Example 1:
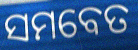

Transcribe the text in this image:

ସମବେତ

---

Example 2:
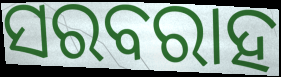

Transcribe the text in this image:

ସରବରାହ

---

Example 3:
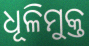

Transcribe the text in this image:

ଧୂଳିମୁକ୍ତ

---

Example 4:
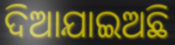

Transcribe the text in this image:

ଦିଆଯାଇଅଛି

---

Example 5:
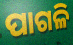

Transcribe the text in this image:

ପାଗଳି